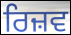
ਰਿਜ਼ਵ